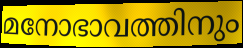
മനോഭാവത്തിനും